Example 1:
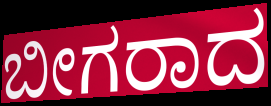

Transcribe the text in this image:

ಬೀಗರಾದ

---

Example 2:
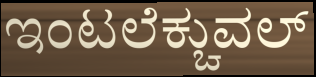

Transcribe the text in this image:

ಇಂಟಲೆಕ್ಚುವಲ್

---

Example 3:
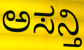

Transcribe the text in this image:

ಅಸನ್ತಿ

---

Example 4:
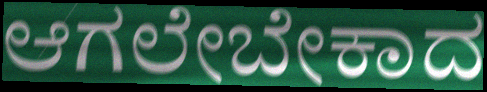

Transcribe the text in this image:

ಆಗಲೇಬೇಕಾದ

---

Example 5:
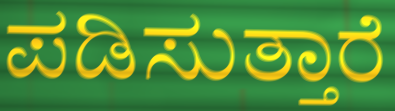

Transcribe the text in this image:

ಪಡಿಸುತ್ತಾರೆ